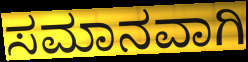
ಸಮಾನವಾಗಿ